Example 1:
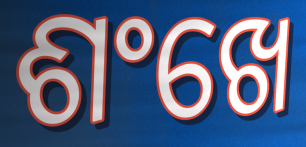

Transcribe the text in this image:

ଶଂଖେ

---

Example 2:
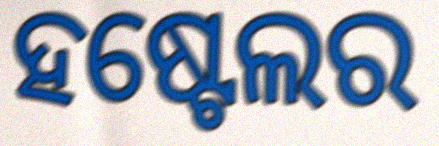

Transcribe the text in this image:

ହଷ୍ଟେଲର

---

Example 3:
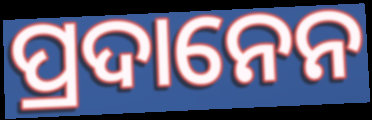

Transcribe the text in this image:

ପ୍ରଦାନେନ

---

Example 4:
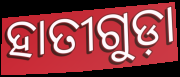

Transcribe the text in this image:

ହାତୀଗୁଡ଼ା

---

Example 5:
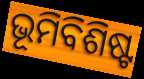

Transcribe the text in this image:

ଭୂମିବିଶିଷ୍ଟ